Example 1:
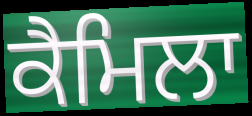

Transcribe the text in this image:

ਕੈਮਿਲਾ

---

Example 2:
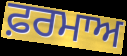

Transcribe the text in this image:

ਫ਼ਰਮਾਅ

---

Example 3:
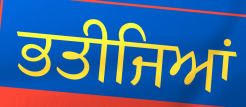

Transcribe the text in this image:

ਭਤੀਜਿਆਂ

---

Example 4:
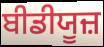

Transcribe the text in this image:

ਬੀਡੀਯੂਜ਼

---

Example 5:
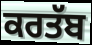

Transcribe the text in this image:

ਕਰਤੱਬ